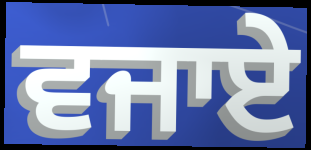
ਵਜਾਏ